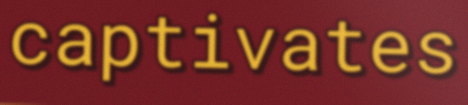
captivates